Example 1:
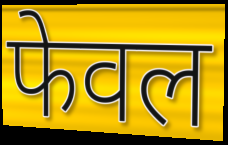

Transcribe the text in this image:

फेवल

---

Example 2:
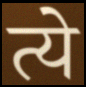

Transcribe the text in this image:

त्ये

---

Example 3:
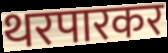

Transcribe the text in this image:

थरपारकर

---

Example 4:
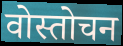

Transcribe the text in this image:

वोस्तोचन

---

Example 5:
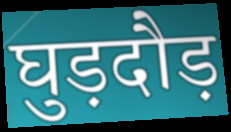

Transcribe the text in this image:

घुड़दौड़